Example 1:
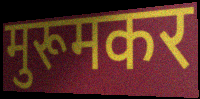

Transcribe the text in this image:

मुरूमकर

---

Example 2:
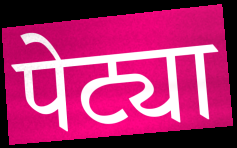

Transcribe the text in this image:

पेट्या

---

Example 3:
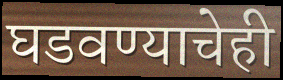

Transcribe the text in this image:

घडवण्याचेही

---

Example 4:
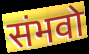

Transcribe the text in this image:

संभवो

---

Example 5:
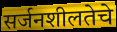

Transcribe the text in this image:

सर्जनशीलतेचे